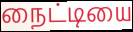
நைட்டியை